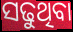
ସଢୁଥିବା